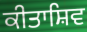
ਕੀਤਾਸ਼ਿਵ